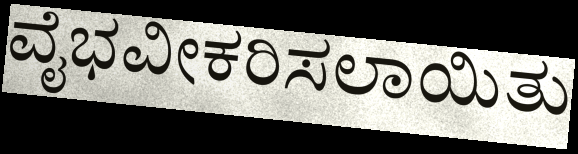
ವೈಭವೀಕರಿಸಲಾಯಿತು